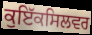
ਕੁਇੱਕਸਿਲਵਰ